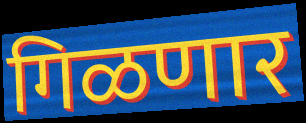
गिळणार